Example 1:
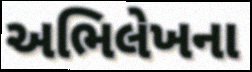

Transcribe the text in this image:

અભિલેખના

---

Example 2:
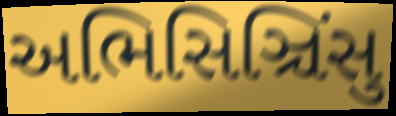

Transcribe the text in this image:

અભિસિઞ્ચિંસુ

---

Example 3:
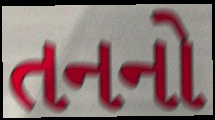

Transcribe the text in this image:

તનનો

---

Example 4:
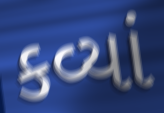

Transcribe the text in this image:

કવ્યાં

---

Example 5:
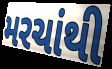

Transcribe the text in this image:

મરચાંથી